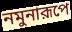
নমুনারূপে